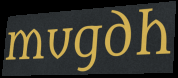
mugdh